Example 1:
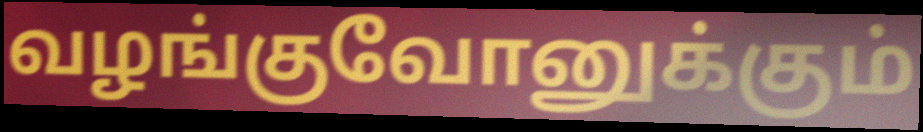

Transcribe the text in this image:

வழங்குவோனுக்கும்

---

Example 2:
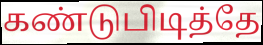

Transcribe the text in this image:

கண்டுபிடித்தே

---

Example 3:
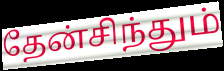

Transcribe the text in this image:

தேன்சிந்தும்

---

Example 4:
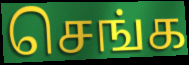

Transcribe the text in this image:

செங்க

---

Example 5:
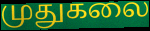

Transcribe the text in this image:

முதுகலை